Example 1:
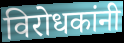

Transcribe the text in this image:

विरोधकांनी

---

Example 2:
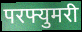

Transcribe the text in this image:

परफ्युमरी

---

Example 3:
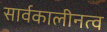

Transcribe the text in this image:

सार्वकालीनत्व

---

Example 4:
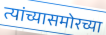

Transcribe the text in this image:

त्यांच्यासमोरच्या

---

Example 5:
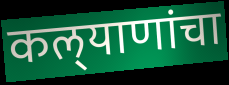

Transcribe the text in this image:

कल्याणांचा